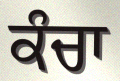
ਕੰਚਾ